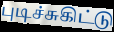
புடிச்சுகிட்டு